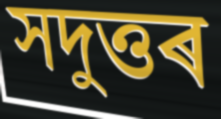
সদুত্তৰ